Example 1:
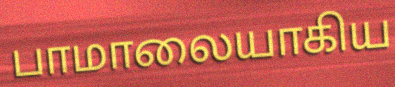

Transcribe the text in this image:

பாமாலையாகிய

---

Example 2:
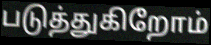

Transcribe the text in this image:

படுத்துகிறோம்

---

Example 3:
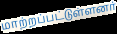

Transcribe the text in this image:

மாற்றப்பட்டுள்ளனர்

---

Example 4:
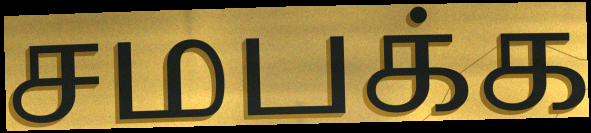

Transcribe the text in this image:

சமபக்க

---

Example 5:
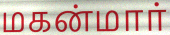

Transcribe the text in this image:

மகன்மார்